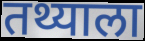
तथ्याला